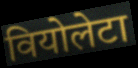
वियोलेटा